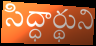
సిద్ధార్థుని